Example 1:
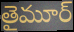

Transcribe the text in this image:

తైమూర్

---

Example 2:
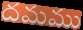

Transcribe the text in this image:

దమము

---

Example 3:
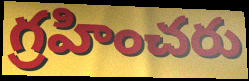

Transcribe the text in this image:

గ్రహించరు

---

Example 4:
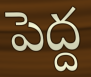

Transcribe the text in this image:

పెద్ద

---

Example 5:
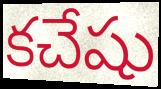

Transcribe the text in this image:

కచేషు